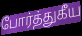
போர்த்துகீய